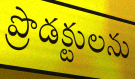
ప్రొడక్టులను